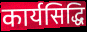
कार्यसिद्धि